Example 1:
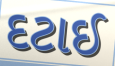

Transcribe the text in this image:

દટાઈ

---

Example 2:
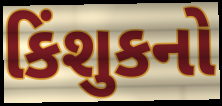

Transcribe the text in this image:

કિંશુકનો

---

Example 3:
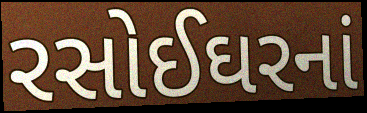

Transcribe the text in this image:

રસોઈઘરનાં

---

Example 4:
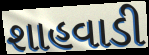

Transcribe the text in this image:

શાહવાડી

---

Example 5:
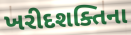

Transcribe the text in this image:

ખરીદશક્તિના